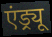
एंड्र्यू